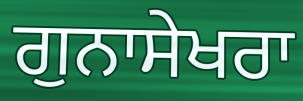
ਗੁਨਾਸੇਖਰਾ